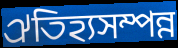
ঐতিহ্যসম্পন্ন